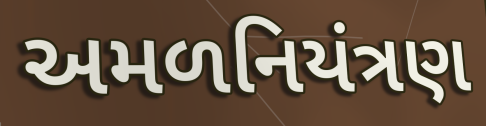
અમળનિયંત્રણ